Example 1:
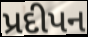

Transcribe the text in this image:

પ્રદીપન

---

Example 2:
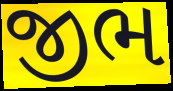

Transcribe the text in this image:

જીભ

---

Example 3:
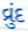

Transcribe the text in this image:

વ્રુંદ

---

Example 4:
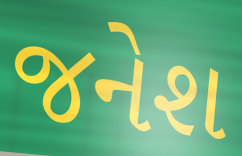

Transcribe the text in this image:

જનેશ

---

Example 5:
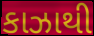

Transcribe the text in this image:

કાઝાથી